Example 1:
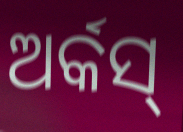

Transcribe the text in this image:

ଅର୍କସ୍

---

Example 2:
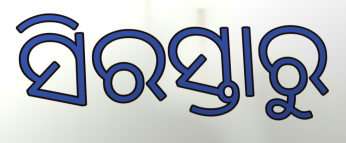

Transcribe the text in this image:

ସିରସ୍ତାରୁ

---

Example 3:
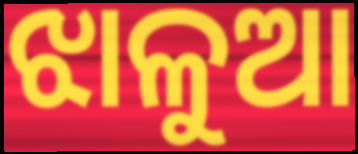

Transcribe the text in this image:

ଝାଳୁଆ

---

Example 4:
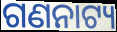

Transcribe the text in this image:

ଗଣନାଟ୍ୟ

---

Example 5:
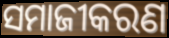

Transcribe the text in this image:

ସମାଜୀକରଣ